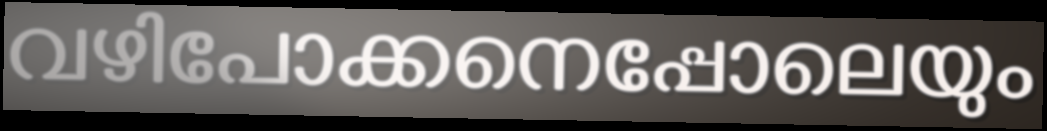
വഴിപോക്കനെപ്പോലെയും